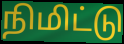
நிமிட்டு